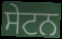
ਸੇਟਨ